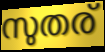
സുതര്